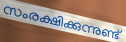
സംരക്ഷിക്കുന്നുണ്ട്